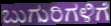
ಬುಗುರಿಗಳಿಗೆ